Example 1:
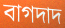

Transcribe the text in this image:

বাগদাদ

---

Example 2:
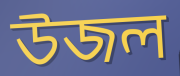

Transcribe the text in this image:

উজল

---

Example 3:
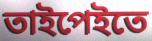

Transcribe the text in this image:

তাইপেইতে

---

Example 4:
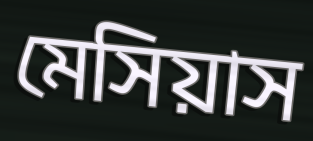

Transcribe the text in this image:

মেসিয়াস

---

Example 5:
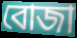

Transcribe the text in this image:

বোজা